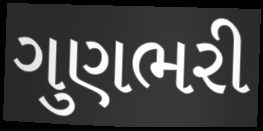
ગુણભરી